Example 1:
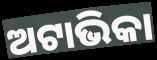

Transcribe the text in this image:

ଅଟାଭିକା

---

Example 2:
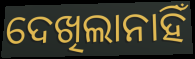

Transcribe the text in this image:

ଦେଖିଲାନାହିଁ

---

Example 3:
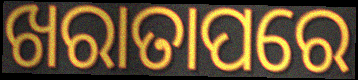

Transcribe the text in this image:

ଖରାତାପରେ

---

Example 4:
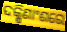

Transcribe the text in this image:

ଦକ୍ଷିଣାଂଶରେ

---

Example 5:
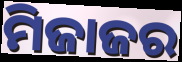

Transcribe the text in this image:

ମିଜାଜର